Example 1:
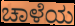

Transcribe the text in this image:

ಚಾಳೆಯ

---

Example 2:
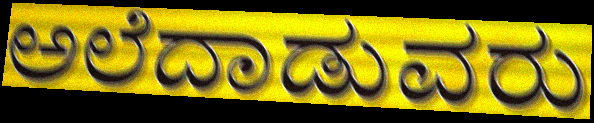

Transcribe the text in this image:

ಅಲೆದಾಡುವರು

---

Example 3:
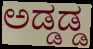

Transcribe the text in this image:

ಅಡ್ಡಡ್ಡ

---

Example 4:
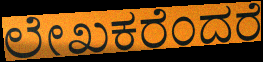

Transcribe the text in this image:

ಲೇಖಕರೆಂದರೆ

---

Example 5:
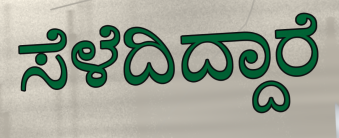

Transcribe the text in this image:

ಸೆಳೆದಿದ್ದಾರೆ